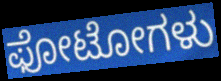
ಫೋಟೋಗಳು